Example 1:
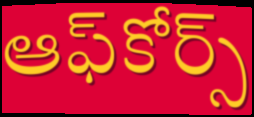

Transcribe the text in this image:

ఆఫ్‌కోర్స్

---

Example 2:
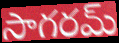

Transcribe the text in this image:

సాగరమ్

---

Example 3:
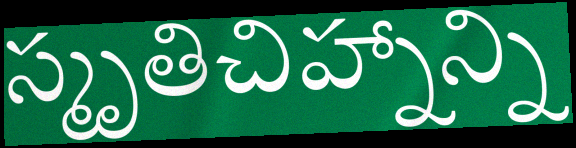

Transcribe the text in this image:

స్మృతిచిహ్నాన్ని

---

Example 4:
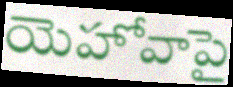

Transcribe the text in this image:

యెహోవాపై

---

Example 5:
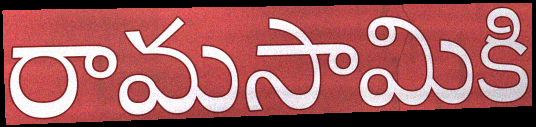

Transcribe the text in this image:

రామసామికి